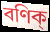
বণিক্